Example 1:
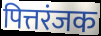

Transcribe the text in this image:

पित्तरंजक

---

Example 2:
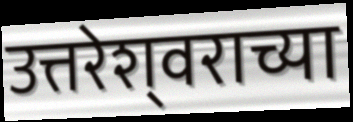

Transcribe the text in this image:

उत्तरेश्वराच्या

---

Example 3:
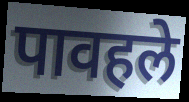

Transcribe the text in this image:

पावहले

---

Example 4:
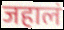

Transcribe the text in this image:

जहालं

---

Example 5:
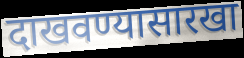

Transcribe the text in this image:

दाखवण्यासारखा